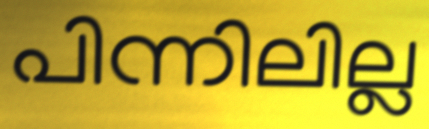
പിന്നിലില്ല